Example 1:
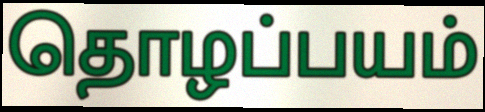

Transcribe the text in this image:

தொழப்பயம்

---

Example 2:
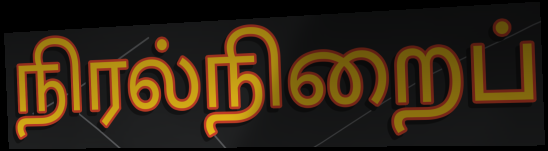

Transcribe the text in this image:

நிரல்நிறைப்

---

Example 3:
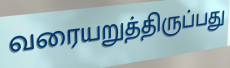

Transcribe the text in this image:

வரையறுத்திருப்பது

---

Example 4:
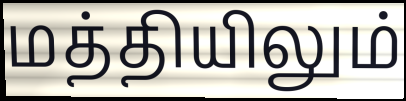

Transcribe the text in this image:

மத்தியிலும்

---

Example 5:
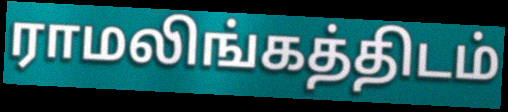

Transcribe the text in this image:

ராமலிங்கத்திடம்